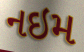
નઇમ